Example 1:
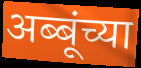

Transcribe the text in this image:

अब्बूंच्या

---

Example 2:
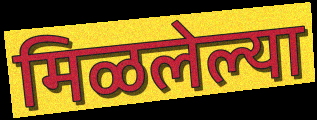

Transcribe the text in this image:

मिळलेल्या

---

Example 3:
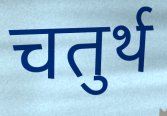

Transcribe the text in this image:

चतुर्थ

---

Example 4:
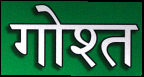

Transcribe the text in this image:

गोश्त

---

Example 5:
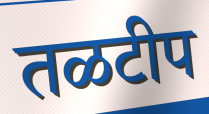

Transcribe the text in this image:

तळटीप